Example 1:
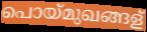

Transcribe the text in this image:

പൊയ്മുഖങ്ങള്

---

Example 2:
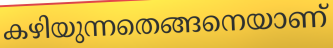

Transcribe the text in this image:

കഴിയുന്നതെങ്ങനെയാണ്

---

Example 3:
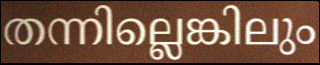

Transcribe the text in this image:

തന്നില്ലെങ്കിലും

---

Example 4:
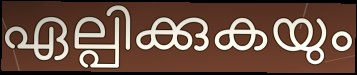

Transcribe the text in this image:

ഏല്പിക്കുകയും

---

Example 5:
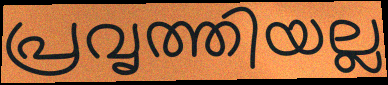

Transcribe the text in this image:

പ്രവൃത്തിയല്ല